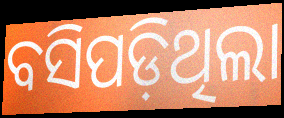
ବସିପଡ଼ିଥିଲା